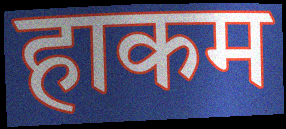
हाकम